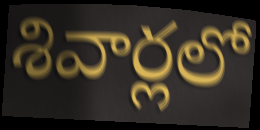
శివార్లలో